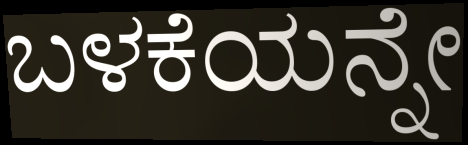
ಬಳಕೆಯನ್ನೇ